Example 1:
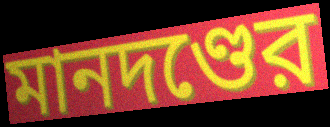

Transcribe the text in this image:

মানদণ্ডের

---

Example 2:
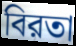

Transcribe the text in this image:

বিরতা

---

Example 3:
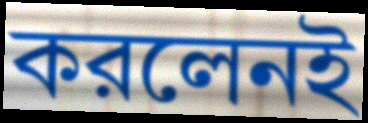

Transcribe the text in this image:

করলেনই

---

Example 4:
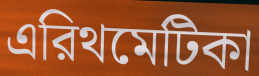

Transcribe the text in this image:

এরিথমেটিকা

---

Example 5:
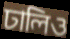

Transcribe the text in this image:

ঢালিও